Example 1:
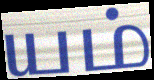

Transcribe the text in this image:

யம்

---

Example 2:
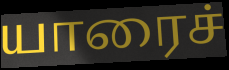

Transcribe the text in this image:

யாரைச்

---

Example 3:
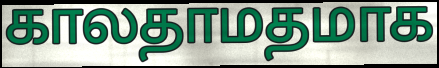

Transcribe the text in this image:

காலதாமதமாக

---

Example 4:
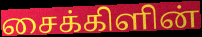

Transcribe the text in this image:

சைக்கிளின்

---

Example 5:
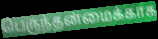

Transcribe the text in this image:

பெருந்தன்மைக்காக